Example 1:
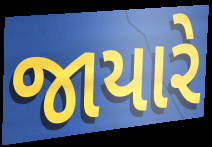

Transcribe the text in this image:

જાયારે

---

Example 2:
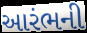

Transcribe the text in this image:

આરંભની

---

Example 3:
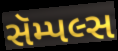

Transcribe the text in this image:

સૅમ્પલ્સ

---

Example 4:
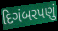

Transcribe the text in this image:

દિગંબરપણું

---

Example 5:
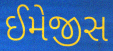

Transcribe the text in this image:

ઈમેજીસ